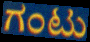
ಗಂಟು